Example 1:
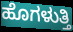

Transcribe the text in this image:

ಹೊಗಳುತ್ತಿ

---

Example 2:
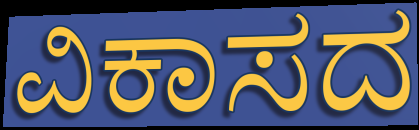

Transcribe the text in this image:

ವಿಕಾಸದ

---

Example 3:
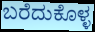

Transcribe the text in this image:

ಬರೆದುಕೊಳ್ಳ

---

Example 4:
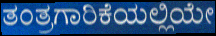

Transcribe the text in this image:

ತಂತ್ರಗಾರಿಕೆಯಲ್ಲಿಯೇ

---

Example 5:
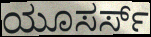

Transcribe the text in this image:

ಯೂಸರ್ಸ್